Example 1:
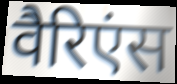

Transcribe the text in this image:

वैरिएंस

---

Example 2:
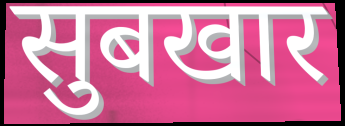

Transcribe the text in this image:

सुबखार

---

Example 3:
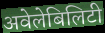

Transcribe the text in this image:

अवेलेबिलिटी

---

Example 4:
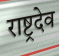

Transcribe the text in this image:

राष्ट्रदेव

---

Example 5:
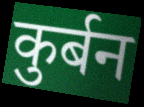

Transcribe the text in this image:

कुर्बन